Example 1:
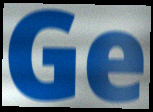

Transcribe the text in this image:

Ge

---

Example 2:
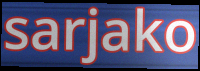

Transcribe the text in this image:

sarjako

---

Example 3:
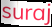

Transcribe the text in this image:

suraj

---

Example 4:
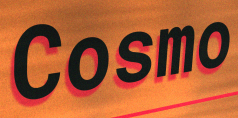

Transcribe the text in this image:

Cosmo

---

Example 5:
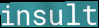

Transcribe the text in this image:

insult